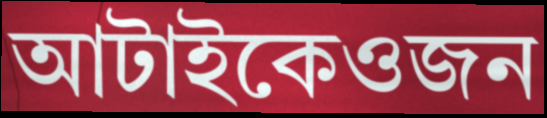
আটাইকেওজন